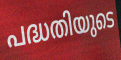
പദ്ധതിയുടെ